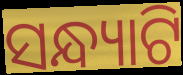
ସନ୍ଧ୍ୟାଟି